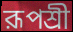
রূপশ্রী